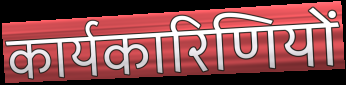
कार्यकारिणियों